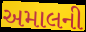
અમાલની